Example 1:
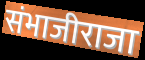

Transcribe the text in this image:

संभाजीराजा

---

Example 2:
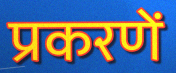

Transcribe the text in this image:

प्रकरणें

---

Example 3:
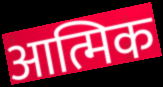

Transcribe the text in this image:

आत्मिक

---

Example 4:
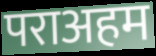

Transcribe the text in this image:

पराअहम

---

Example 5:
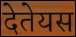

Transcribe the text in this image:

देतेयस